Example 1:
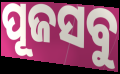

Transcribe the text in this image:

ପୂଜସବୁ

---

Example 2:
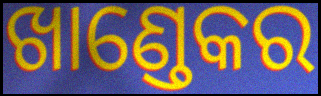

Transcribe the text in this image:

ଖାଣ୍ଡେକର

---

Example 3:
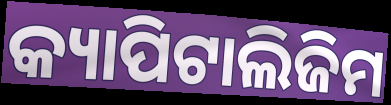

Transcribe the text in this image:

କ୍ୟାପିଟାଲିଜିମ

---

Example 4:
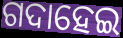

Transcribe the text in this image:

ଗଦାହେଇ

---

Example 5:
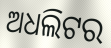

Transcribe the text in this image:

ଅଧଲିଟର